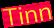
Tinn